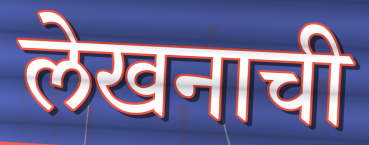
लेखनाची